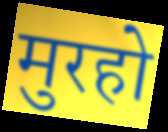
मुरहो